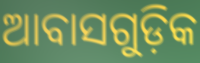
ଆବାସଗୁଡ଼ିକ